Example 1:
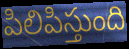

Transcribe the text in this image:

పిలిపిస్తుంది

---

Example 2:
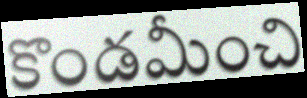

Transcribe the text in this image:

కొండమీంచి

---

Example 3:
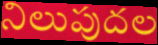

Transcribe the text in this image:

నిలుపుదల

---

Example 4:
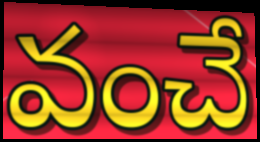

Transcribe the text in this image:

వంచే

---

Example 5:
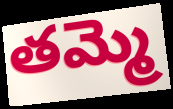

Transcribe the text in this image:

తమ్మె